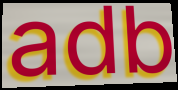
adb